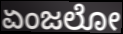
ಏಂಜಲೋ